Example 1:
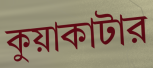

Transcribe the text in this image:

কুয়াকাটার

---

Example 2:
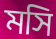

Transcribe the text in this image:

মসি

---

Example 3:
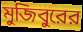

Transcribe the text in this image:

মুজিবুরের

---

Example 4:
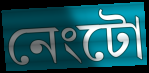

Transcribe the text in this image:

নেংটো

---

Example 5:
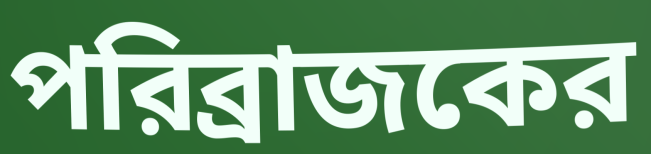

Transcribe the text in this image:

পরিব্রাজকের